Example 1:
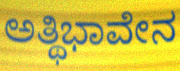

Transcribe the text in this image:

ಅತ್ಥಿಭಾವೇನ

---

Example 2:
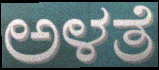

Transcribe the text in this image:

ಅಳತೆ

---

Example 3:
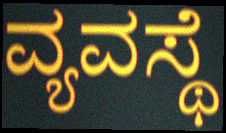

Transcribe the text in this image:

ವ್ಯವಸ್ಥೆ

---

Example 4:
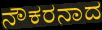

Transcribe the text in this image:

ನೌಕರನಾದ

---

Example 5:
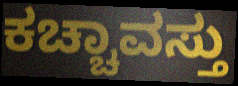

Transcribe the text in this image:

ಕಚ್ಚಾವಸ್ತು